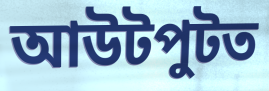
আউটপুটত